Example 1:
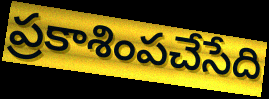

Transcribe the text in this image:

ప్రకాశింపచేసేది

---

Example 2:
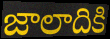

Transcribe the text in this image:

జాలాదికి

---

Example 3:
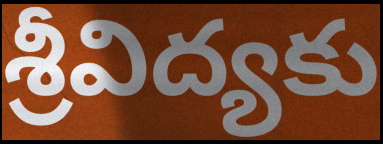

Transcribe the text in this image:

శ్రీవిద్యకు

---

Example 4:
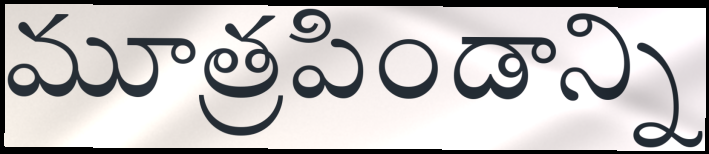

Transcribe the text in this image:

మూత్రపిండాన్ని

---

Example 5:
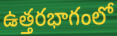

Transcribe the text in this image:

ఉత్తరభాగంలో